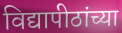
विद्यापीठांच्या